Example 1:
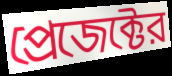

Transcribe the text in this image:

প্রেজেক্টের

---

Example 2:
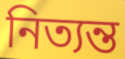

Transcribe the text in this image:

নিত্যন্ত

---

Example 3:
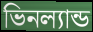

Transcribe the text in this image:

ভিনল্যান্ড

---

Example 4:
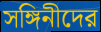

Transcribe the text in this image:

সঙ্গিনীদের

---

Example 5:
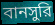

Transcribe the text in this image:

বানসুরি